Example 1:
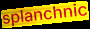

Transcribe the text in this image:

splanchnic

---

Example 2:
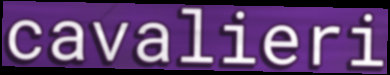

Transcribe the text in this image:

cavalieri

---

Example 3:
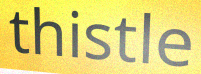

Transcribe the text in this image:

thistle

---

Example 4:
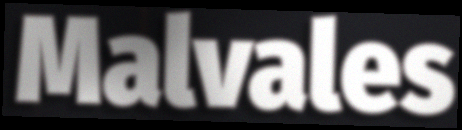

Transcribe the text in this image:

Malvales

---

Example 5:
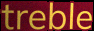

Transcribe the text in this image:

treble